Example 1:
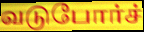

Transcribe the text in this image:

வடுபோர்ச்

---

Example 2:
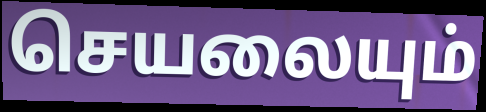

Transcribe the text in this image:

செயலையும்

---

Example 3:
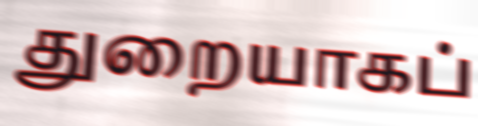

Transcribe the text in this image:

துறையாகப்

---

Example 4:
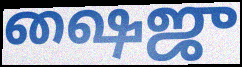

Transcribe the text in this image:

ஷைஜு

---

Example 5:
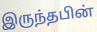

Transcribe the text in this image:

இருந்தபின்